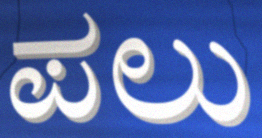
ಪಲು